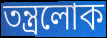
তন্ত্রলোক